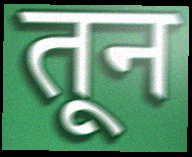
तून